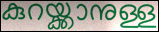
കുറയ്ക്കാനുള്ള